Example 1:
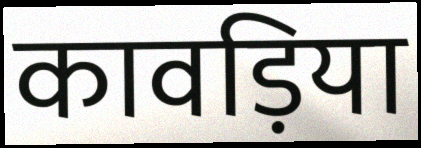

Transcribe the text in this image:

कावड़िया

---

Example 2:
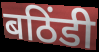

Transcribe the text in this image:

बठिंडी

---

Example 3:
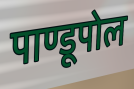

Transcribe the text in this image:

पाण्डूपोल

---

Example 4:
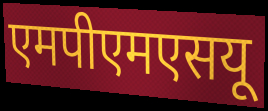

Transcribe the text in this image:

एमपीएमएसयू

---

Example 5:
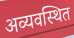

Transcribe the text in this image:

अव्यवस्थित